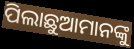
ପିଲାଛୁଆମାନଙ୍କୁ